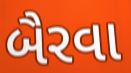
બૈરવા